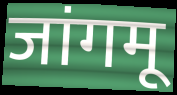
जांगमू